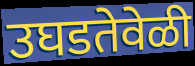
उघडतेवेळी